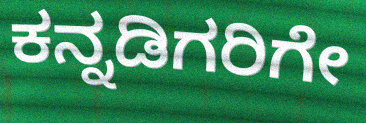
ಕನ್ನಡಿಗರಿಗೇ